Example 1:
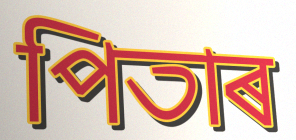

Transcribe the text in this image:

পিতাৰ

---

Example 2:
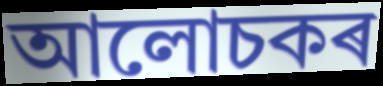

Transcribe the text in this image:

আলোচকৰ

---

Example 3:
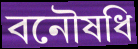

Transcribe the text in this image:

বনৌষধি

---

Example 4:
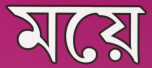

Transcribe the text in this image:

ময়ে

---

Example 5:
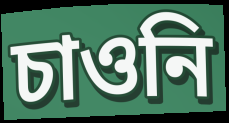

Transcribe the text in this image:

চাওনি